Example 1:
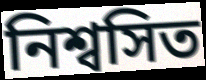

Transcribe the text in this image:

নিশ্বসিত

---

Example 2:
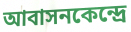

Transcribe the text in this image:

আবাসনকেন্দ্রে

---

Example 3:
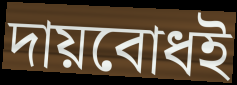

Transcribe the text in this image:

দায়বোধই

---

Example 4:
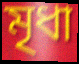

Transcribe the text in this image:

মৃধা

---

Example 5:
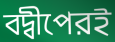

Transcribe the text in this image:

বদ্বীপেরই